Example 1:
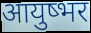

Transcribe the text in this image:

आयुष्भर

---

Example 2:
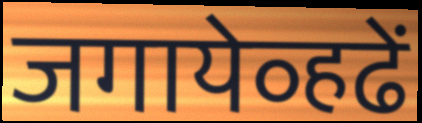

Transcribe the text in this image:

जगायेव्हढें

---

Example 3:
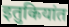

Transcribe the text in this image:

इतुकियांत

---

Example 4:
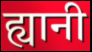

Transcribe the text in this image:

ह्यानी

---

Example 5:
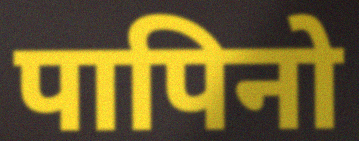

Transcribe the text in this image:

पापिनो